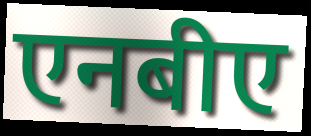
एनबीए